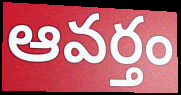
ఆవర్తం